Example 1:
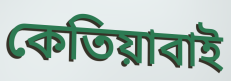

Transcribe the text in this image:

কেতিয়াবাই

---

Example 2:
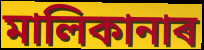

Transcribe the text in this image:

মালিকানাৰ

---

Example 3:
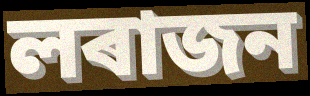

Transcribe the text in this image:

লৰাজন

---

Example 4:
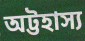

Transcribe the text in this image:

অট্টহাস্য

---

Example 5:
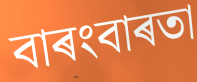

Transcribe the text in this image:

বাৰংবাৰতা